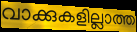
വാക്കുകളില്ലാത്ത